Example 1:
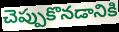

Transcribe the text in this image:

చెప్పుకొనడానికి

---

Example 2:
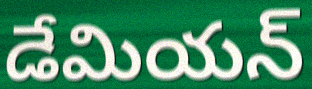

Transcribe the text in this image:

డేమియన్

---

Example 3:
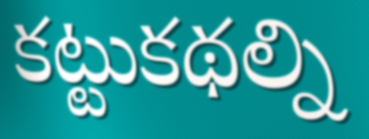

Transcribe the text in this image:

కట్టుకథల్ని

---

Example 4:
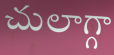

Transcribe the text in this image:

చులాగ్గా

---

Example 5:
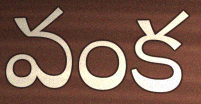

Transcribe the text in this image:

వంక